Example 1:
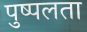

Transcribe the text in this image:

पुष्पलता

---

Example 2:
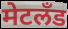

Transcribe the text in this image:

मेटलँड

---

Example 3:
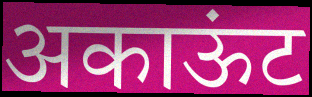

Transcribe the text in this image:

अकाऊंट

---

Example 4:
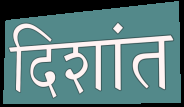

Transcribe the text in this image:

दिशांत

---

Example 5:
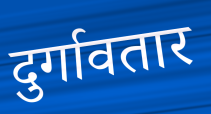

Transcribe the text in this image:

दुर्गावतार